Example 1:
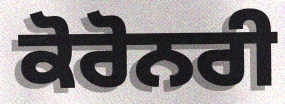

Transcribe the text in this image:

ਕੋਰੋਨਰੀ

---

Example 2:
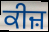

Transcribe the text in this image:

ਕੀਜ਼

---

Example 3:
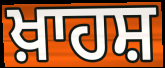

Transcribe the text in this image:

ਖ਼ਾਹਸ਼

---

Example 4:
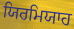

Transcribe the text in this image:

ਯਿਰਮਿਯਾਹ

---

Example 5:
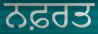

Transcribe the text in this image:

ਨਫ਼ਰਤ